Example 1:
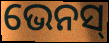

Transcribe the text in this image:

ଭେନସ୍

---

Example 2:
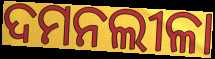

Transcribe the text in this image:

ଦମନଲୀଳା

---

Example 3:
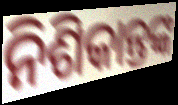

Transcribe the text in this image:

ନିଶିକାନ୍ତଙ୍କ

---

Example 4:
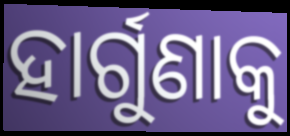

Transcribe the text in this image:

ହାର୍ଗୁଣାକୁ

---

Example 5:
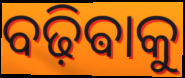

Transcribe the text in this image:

ବଢ଼ିଵାକୁ